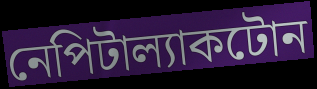
নেপিটাল্যাকটোন